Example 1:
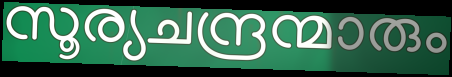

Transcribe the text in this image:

സൂര്യചന്ദ്രന്മാരും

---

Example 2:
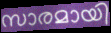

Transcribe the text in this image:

സാരമായി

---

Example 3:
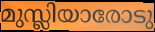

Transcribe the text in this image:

മുസ്ലിയാരോടു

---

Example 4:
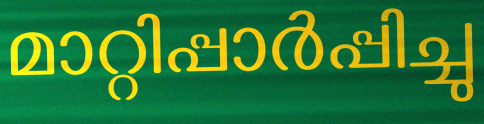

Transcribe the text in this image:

മാറ്റിപ്പാർപ്പിച്ചു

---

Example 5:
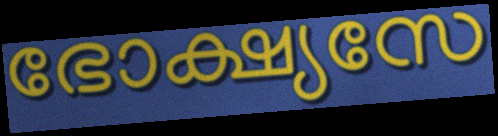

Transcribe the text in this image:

ഭോക്ഷ്യസേ